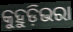
କୁହୁଡ଼ିଭରା